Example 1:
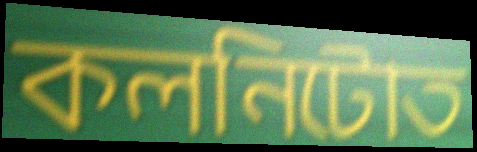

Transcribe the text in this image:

কলনিটোত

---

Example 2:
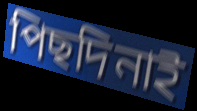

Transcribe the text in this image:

পিছদিনাই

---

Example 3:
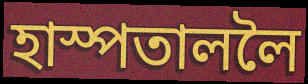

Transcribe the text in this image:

হাস্পতাললৈ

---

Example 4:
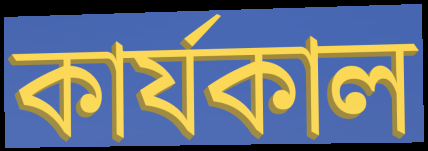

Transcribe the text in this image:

কাৰ্যকাল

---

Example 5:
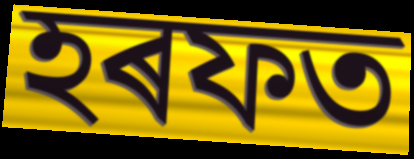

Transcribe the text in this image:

হৰফত